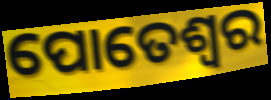
ପୋତେଶ୍ବର